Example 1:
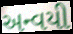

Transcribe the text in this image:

અન્વયી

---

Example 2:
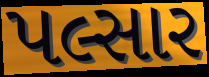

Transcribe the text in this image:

પલ્સાર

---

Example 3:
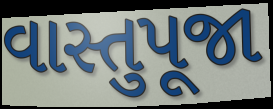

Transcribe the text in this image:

વાસ્તુપૂજા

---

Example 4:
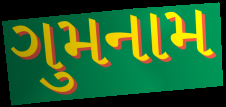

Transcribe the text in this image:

ગુમનામ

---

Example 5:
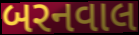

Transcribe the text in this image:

બરનવાલ